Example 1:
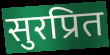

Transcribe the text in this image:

सुरप्रित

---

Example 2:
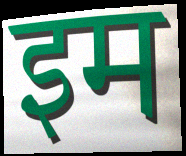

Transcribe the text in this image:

इम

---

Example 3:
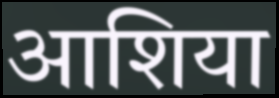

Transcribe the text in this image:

आशिया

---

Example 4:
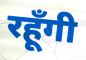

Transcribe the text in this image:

रहूँगी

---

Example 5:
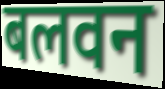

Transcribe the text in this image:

बलवन